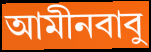
আমীনবাবু